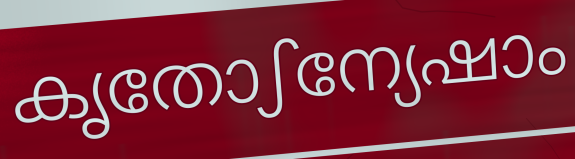
കൃതോഽന്യേഷാം